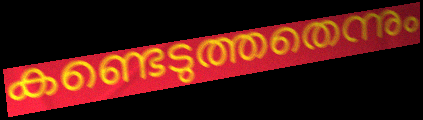
കണ്ടെടുത്തതെന്നും